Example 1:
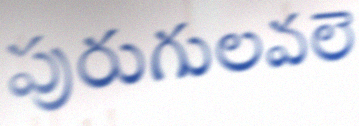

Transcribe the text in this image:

పురుగులవలె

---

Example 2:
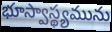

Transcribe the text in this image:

భూస్వాస్థ్యమును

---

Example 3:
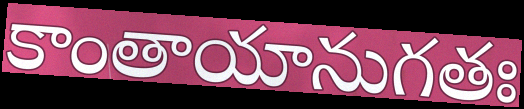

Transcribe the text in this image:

కాంతాయానుగతః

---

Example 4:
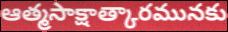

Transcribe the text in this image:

ఆత్మసాక్షాత్కారమునకు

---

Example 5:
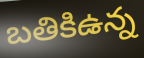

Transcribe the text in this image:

బతికిఉన్న